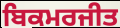
ਬਿਕਮਰਜੀਤ